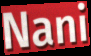
Nani